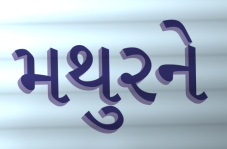
મથુરને